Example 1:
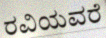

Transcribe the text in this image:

ರವಿಯವರೆ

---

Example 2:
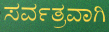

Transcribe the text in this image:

ಸರ್ವತ್ರವಾಗಿ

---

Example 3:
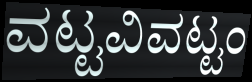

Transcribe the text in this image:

ವಟ್ಟವಿವಟ್ಟಂ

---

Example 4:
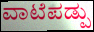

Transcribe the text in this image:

ವಾಟೆಪಡ್ಪು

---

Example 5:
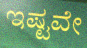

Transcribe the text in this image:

ಇಷ್ಟವೇ